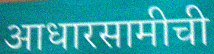
आधारसामीची